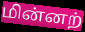
மின்னற்